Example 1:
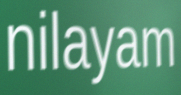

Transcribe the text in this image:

nilayam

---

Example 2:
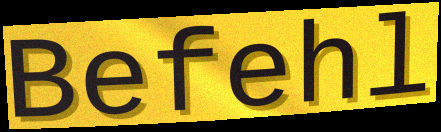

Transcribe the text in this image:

Befehl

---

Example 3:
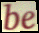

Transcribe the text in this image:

be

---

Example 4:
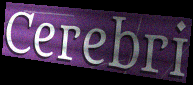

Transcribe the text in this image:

Cerebri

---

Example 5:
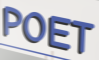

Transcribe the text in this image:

POET